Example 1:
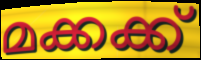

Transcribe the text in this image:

മക്കക്ക്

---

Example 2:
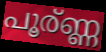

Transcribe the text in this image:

പൂര്ണ്ണ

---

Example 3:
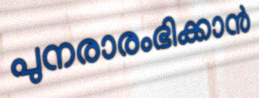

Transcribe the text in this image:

പുനരാരംഭിക്കാൻ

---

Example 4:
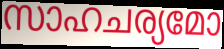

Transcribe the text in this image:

സാഹചര്യമോ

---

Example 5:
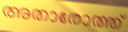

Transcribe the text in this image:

അതാരോത്ത്